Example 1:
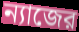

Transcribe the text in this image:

ন্যাজের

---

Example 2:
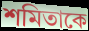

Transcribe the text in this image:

শমিতাকে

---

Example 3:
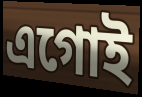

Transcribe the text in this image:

এগোই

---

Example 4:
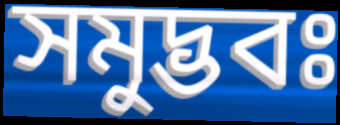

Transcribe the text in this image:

সমুদ্ভবঃ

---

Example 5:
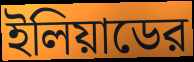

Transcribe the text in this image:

ইলিয়াডের